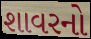
શાવરનો